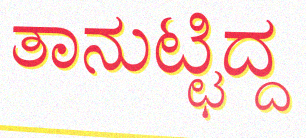
ತಾನುಟ್ಟಿದ್ದ